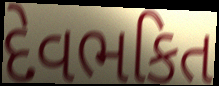
દેવભકિત